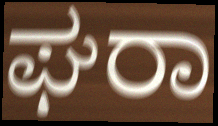
ಘರಾ